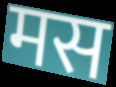
मस